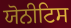
ਯੋਨੀਟਿਸ